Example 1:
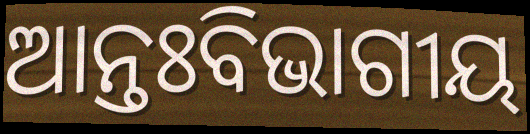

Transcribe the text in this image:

ଆନ୍ତଃବିଭାଗୀୟ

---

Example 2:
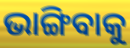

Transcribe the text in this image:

ଭାଙ୍ଗିବାକୁ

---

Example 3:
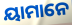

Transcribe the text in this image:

ୟାମାନେ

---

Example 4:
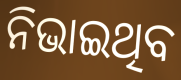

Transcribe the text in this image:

ନିଭାଇଥିବ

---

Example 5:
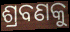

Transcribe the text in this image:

ଶ୍ରବଣକୁ